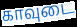
காவுடை